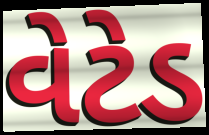
વેટેડ